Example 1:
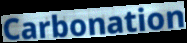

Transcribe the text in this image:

Carbonation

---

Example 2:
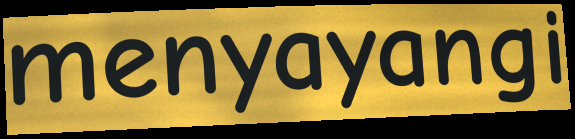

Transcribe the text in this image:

menyayangi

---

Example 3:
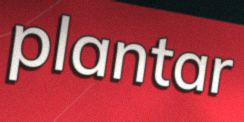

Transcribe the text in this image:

plantar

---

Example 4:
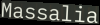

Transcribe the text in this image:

Massalia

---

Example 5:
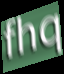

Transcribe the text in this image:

fhq